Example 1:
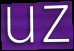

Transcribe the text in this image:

uz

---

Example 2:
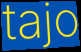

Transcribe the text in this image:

tajo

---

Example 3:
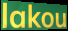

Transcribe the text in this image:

lakou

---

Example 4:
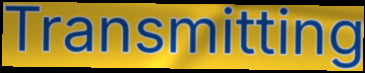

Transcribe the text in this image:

Transmitting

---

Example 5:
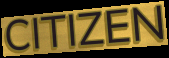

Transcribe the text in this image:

CITIZEN